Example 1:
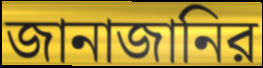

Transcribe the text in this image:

জানাজানির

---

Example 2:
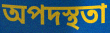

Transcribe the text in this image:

অপদস্থতা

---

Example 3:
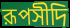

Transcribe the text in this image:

রূপসীদি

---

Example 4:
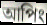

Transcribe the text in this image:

আপিং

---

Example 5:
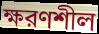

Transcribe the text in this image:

ক্ষরণশীল